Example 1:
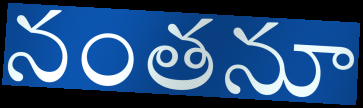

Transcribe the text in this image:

నంతనూ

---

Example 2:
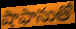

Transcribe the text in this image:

షాఫానుతో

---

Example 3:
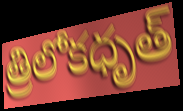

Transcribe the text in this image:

త్రిలోకధృత్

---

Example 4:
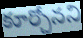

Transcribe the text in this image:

కూర్చోనని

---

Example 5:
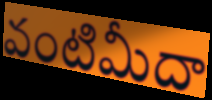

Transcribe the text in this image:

వంటిమీదా